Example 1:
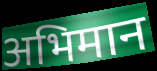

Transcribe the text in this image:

अभिमान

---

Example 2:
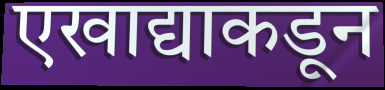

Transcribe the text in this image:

एखाद्याकडून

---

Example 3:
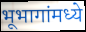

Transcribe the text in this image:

भूभागांमध्ये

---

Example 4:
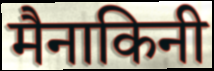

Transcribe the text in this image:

मैनाकिनी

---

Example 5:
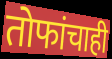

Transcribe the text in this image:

तोफांचाही